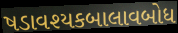
ષડાવશ્યકબાલાવબોધ